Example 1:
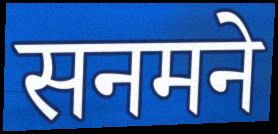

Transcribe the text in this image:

सनमने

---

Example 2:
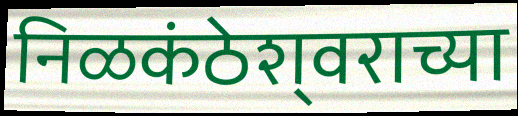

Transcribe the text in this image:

निळकंठेश्वराच्या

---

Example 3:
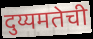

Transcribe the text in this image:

दुय्यमतेची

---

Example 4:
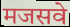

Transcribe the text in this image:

मजसवे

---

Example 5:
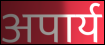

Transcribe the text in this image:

अपार्य